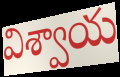
విశ్వాయ